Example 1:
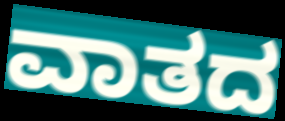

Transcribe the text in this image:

ವಾತದ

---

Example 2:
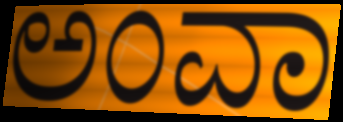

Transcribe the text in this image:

ಅಂವಾ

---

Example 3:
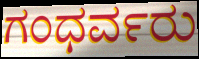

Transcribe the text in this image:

ಗಂಧರ್ವರು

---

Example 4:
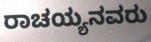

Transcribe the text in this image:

ರಾಚಯ್ಯನವರು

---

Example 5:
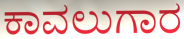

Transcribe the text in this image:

ಕಾವಲುಗಾರ